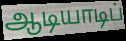
ஆடியாடிப்